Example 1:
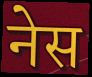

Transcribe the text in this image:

नेस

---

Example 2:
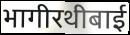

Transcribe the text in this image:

भागीरथीबाई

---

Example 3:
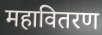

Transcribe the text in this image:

महावितरण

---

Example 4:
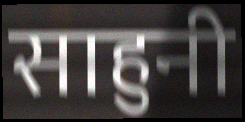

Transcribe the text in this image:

साहुनी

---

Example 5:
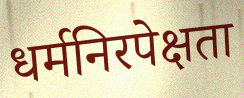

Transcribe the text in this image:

धर्मनिरपेक्षता